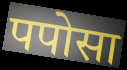
पपोसा